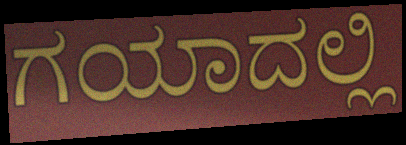
ಗಯಾದಲ್ಲಿ